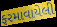
ફરમાવાયેલી